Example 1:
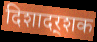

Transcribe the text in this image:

दिशादर्शक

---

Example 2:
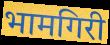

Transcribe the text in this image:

भामगिरी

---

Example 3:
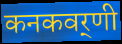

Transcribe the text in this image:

कनकवर्णी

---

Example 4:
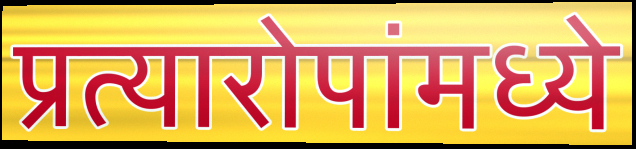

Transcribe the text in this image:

प्रत्यारोपांमध्ये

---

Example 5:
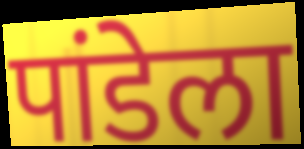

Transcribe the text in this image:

पांडेला